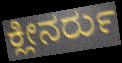
ಕ್ಲೀನರ್ರು